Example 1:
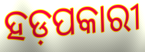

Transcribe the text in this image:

ହଡ଼ପକାରୀ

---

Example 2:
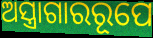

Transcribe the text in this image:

ଅସ୍ତ୍ରାଗାରରୂପେ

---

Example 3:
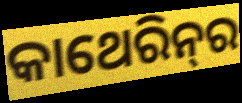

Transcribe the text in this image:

କାଥେରିନ୍‌ର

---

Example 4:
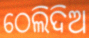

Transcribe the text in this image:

ଠେଲିଦିଅ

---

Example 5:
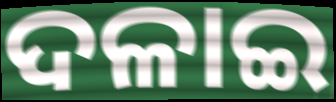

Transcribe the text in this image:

ଦଳାଇ